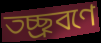
তচ্ছ্রবণে